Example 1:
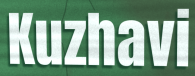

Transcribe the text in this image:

Kuzhavi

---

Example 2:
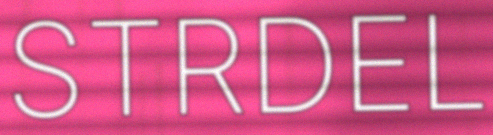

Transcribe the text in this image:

STRDEL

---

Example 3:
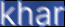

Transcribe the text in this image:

khar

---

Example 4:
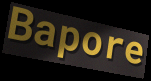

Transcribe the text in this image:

Bapore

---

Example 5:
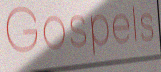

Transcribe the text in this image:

Gospels